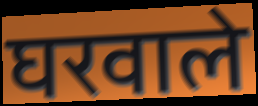
घरवाले